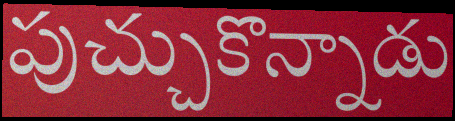
పుచ్చుకొన్నాడు